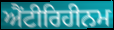
ਐਂਟੀਰਿਹੀਨਮ